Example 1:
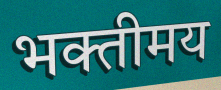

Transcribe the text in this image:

भक्तीमय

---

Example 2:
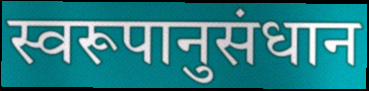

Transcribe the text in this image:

स्वरूपानुसंधान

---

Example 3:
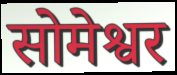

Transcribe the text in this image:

सोमेश्वर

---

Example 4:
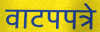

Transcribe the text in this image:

वाटपपत्रे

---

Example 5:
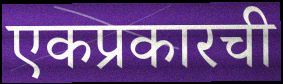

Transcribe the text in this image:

एकप्रकारची